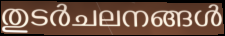
തുടർചലനങ്ങൾ